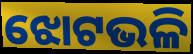
ଝୋଟଭଳି